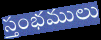
స్తంభములు